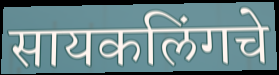
सायकलिंगचे